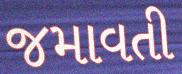
જમાવતી